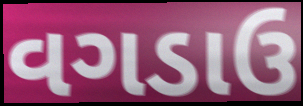
વગડાઉ